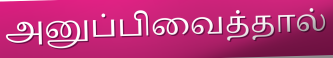
அனுப்பிவைத்தால்